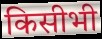
किसीभी